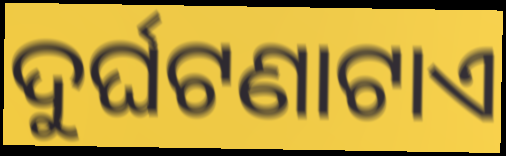
ଦୁର୍ଘଟଣାଟାଏ